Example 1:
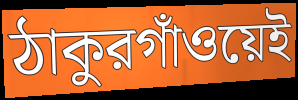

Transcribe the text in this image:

ঠাকুরগাঁওয়েই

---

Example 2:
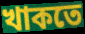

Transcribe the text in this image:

খাকতে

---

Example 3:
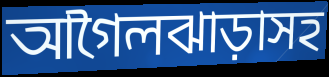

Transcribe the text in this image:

আগৈলঝাড়াসহ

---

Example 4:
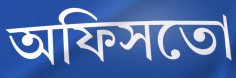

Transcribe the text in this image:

অফিসতো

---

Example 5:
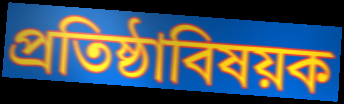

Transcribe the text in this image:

প্রতিষ্ঠাবিষয়ক